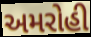
અમરોહી